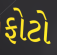
ફોટો